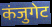
कंजुगेट